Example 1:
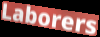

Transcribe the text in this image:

Laborers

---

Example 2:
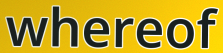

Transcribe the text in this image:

whereof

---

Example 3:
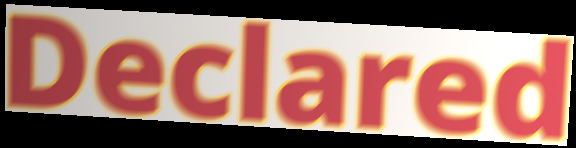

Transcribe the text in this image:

Declared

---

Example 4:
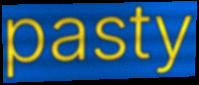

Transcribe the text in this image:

pasty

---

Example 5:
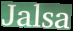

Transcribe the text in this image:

Jalsa